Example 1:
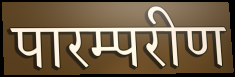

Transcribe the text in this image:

पारम्परीण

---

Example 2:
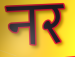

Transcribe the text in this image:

नर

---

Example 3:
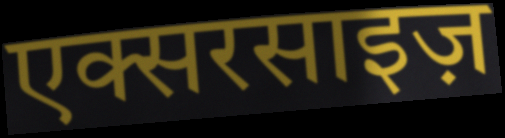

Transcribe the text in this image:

एक्सरसाइज़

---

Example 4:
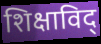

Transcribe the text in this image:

शिक्षाविद्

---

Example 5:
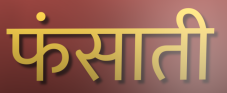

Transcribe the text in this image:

फंसाती